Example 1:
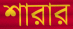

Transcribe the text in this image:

শারার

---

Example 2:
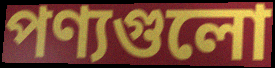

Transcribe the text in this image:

পণ্যগুলো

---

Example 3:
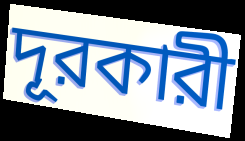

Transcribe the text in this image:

দূরকারী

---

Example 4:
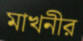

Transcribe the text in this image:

মাখনীর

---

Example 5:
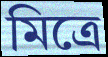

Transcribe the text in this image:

মিত্রে